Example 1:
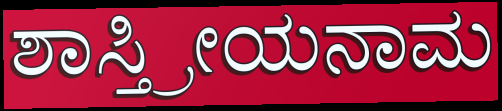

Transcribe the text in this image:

ಶಾಸ್ತ್ರೀಯನಾಮ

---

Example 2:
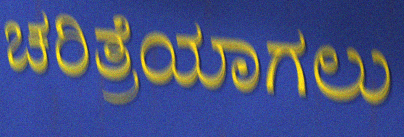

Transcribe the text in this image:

ಚರಿತ್ರೆಯಾಗಲು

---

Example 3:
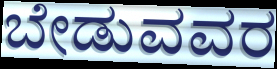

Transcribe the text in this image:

ಬೇಡುವವರ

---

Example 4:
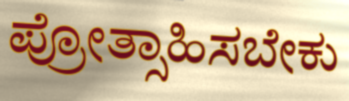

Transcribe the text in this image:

ಪ್ರೋತ್ಸಾಹಿಸಬೇಕು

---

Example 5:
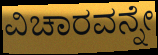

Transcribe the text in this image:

ವಿಚಾರವನ್ನೇ